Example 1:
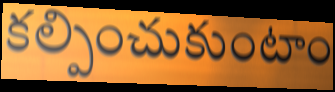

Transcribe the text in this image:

కల్పించుకుంటాం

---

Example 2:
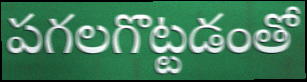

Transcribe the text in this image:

పగలగొట్టడంతో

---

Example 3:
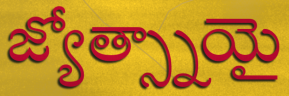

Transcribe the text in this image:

జ్యోత్స్నాయై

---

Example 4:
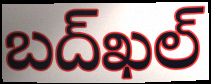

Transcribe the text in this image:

బద్‌ఖల్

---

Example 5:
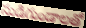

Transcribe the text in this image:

సుడిగుండాలతో